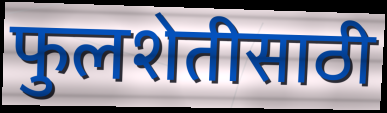
फुलशेतीसाठी